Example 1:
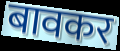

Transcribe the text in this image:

बावकर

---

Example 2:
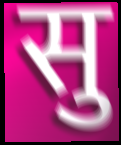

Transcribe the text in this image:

सु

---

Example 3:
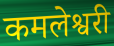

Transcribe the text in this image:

कमलेश्वरी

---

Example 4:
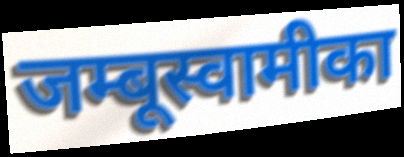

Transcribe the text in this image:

जम्बूस्वामीका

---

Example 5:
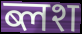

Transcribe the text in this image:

ब्लश